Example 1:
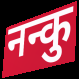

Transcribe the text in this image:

नन्कु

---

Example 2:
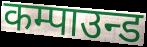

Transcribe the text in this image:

कम्पाउन्ड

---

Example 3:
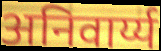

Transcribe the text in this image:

अनिवार्य्य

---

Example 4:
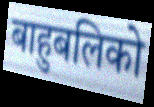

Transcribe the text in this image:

बाहुबलिको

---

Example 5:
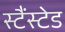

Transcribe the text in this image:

स्टैंस्टेड